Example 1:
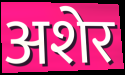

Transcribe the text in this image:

अशेर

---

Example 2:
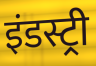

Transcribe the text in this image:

इंडस्ट्री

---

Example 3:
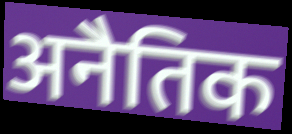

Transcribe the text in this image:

अनैतिक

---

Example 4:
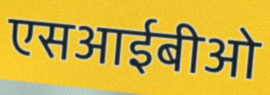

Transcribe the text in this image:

एसआईबीओ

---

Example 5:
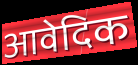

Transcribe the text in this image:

आवेदिक